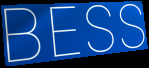
BESS